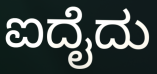
ಐದೈದು